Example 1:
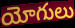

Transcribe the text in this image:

యోగులు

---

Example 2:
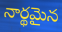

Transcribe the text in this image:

నార్థమైన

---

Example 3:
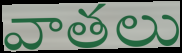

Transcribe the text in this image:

వాతలు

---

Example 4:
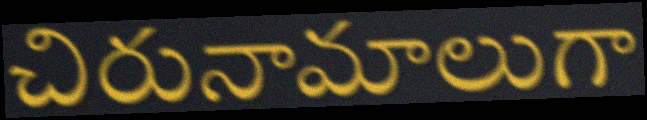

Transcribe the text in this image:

చిరునామాలుగా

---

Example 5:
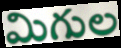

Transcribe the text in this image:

మిగుల